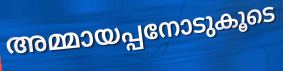
അമ്മായപ്പനോടുകൂടെ